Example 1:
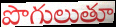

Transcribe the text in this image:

పొగులుతూ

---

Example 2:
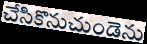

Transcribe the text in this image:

చేసికొనుచుండెను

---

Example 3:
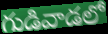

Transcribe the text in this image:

గుడివాడలో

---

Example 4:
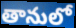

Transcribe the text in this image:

తానులో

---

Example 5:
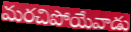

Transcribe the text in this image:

మరచిపోయేవాడు